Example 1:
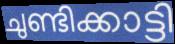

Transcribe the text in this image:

ചുണ്ടിക്കാട്ടി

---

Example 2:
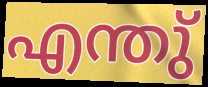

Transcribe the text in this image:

എന്തു്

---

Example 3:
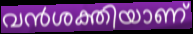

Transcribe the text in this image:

വൻശക്തിയാണ്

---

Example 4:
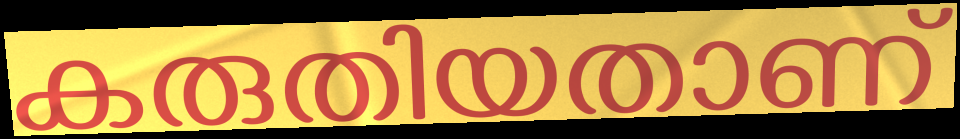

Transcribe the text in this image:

കരുതിയതാണ്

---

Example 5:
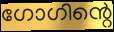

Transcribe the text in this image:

ഗോഗിന്റെ